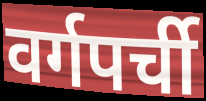
वर्गपर्ची